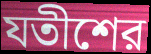
যতীশের